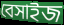
বেসাইজ